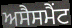
ਅਸੈਸਮੈਂਟ